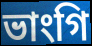
ভাংগি